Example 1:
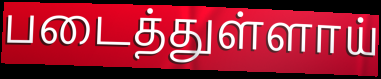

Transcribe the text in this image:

படைத்துள்ளாய்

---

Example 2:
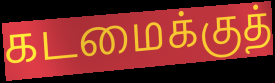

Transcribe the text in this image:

கடமைக்குத்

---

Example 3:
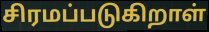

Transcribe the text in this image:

சிரமப்படுகிறாள்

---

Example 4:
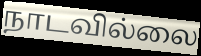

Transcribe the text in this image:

நாடவில்லை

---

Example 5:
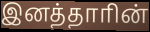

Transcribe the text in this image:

இனத்தாரின்